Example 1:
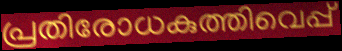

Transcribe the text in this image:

പ്രതിരോധകുത്തിവെപ്പ്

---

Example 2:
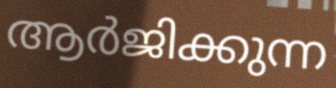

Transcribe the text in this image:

ആർജിക്കുന്ന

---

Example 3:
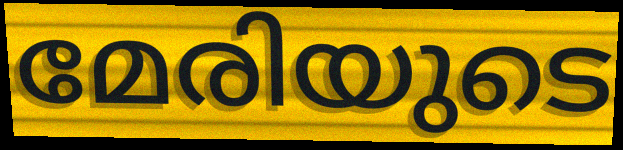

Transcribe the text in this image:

മേരിയുടെ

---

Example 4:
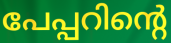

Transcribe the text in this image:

പേപ്പറിന്റെ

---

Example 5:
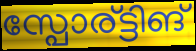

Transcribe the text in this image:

സ്പോര്ട്ടിങ്